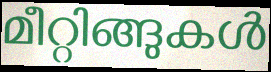
മീറ്റിങ്ങുകൾ